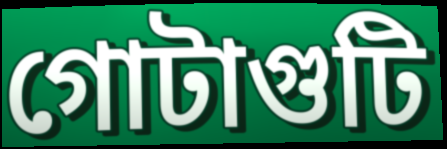
গোটাগুটি